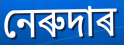
নেৰুদাৰ